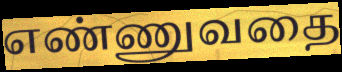
எண்ணுவதை